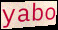
yabo